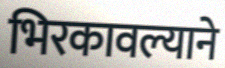
भिरकावल्याने